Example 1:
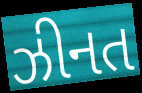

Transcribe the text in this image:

ઝીનત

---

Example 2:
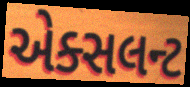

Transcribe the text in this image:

એક્સલન્ટ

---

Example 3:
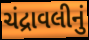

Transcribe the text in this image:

ચંદ્રાવલીનું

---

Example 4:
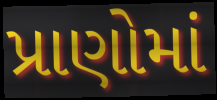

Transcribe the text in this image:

પ્રાણોમાં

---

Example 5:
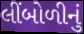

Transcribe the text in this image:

લીંબોળીનું